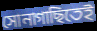
সোনাগাছিতেই